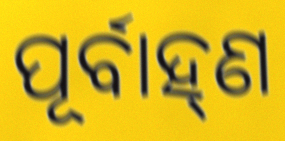
ପୂର୍ବାହ୍‌ଣ